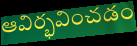
ఆవిర్భవించడం